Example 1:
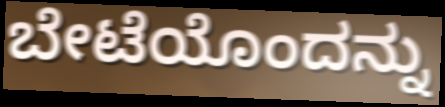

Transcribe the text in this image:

ಬೇಟೆಯೊಂದನ್ನು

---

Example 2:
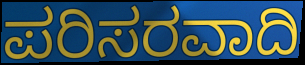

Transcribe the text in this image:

ಪರಿಸರವಾದಿ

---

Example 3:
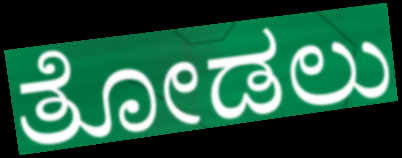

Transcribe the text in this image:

ತೋಡಲು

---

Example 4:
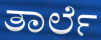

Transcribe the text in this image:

ತಾರ್ಲೆ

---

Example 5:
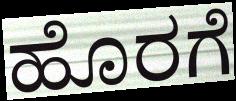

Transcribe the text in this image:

ಹೊರಗೆ